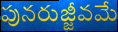
పునరుజ్జీవమే